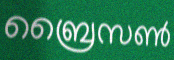
ബ്രൈസൺ